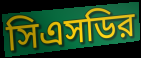
সিএসডির